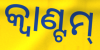
କ୍ଵାଣ୍ଟମ୍